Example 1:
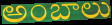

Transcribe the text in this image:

అంబాలు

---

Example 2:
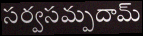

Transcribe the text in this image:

సర్వసమ్పదామ్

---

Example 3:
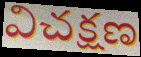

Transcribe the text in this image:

విచక్షణ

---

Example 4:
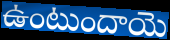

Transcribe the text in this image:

ఉంటుందాయె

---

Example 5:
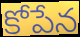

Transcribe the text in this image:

కోపేన